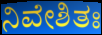
ನಿವೇಶಿತಃ